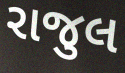
રાજુલ